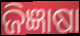
ଜିଜ୍ଞାଷା